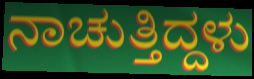
ನಾಚುತ್ತಿದ್ದಳು